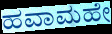
ಹವಾಮಹೇ